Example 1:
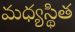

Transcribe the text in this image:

మధ్యస్థిత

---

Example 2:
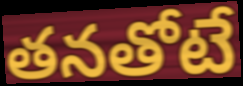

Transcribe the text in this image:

తనతోటే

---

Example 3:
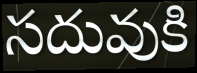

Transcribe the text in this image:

సదువుకి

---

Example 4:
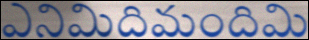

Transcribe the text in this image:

ఎనిమిదిమందిమి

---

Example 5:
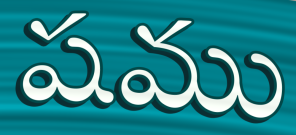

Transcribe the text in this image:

షము